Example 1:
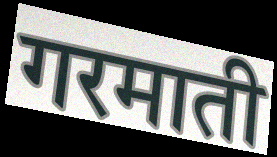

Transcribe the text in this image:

गरमाती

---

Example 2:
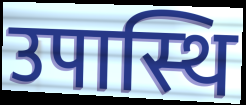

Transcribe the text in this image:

उपास्थि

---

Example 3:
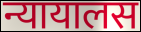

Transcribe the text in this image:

न्यायालस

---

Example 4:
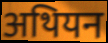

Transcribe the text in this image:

अथियन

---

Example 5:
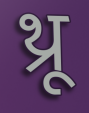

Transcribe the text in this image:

थ्रू